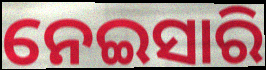
ନେଇସାରି